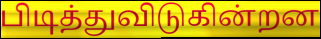
பிடித்துவிடுகின்றன